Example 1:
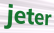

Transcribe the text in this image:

jeter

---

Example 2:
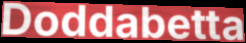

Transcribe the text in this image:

Doddabetta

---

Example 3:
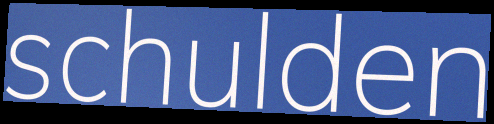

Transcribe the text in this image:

schulden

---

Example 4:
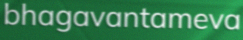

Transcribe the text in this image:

bhagavantameva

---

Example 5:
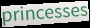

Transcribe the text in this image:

princesses